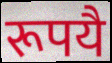
रूपयै